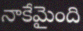
నాకేమైంది